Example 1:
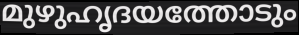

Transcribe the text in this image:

മുഴുഹൃദയത്തോടും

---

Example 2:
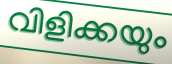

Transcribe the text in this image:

വിളിക്കയും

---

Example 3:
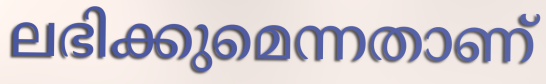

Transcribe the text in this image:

ലഭിക്കുമെന്നതാണ്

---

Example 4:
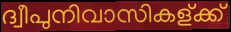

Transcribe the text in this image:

ദ്വീപുനിവാസികള്ക്ക്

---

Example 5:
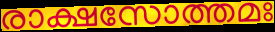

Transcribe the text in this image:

രാക്ഷസോത്തമഃ